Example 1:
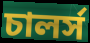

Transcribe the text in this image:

চালর্স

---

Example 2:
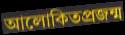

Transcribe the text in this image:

আলোকিতপ্রজন্ম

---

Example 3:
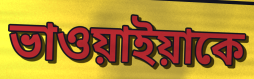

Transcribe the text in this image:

ভাওয়াইয়াকে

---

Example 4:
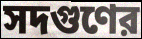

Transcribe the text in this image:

সদগুণের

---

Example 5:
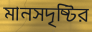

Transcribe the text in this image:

মানসদৃষ্টির